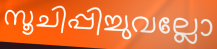
സൂചിപ്പിച്ചുവല്ലോ